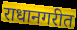
राधानगरीत